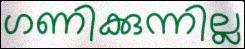
ഗണിക്കുന്നില്ല